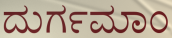
ದುರ್ಗಮಾಂ